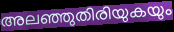
അലഞ്ഞുതിരിയുകയും